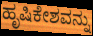
ಹೃಷಿಕೇಶವನ್ನು